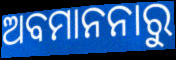
ଅବମାନନାରୁ